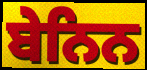
ਬੇਨਿਨ